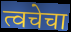
त्वचेचा